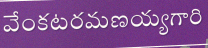
వేంకటరమణయ్యగారి